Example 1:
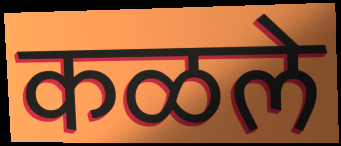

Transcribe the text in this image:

कळले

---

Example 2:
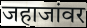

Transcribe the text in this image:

जहाजांवर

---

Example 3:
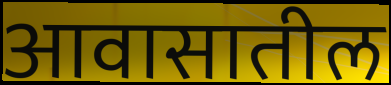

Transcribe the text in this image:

आवासातील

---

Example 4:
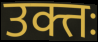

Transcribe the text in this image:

उक्तः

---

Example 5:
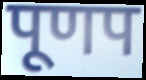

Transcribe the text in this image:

पूणप